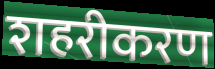
शहरीकरण